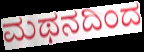
ಮಥನದಿಂದ